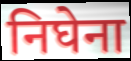
निघेना